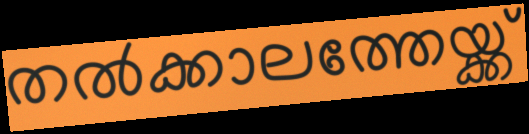
തൽക്കാലത്തേയ്ക്ക്